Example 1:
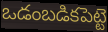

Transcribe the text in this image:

ఒడంబడికపెట్టె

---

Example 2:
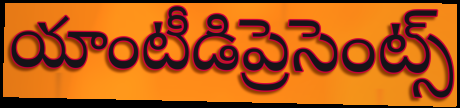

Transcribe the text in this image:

యాంటీడిప్రెసెంట్స్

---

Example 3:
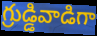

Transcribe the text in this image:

గ్రుడ్డివాడిగా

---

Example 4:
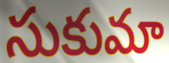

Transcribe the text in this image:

సుకుమా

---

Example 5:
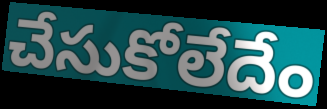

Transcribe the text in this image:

చేసుకోలేదేం